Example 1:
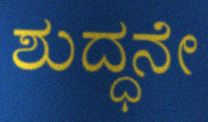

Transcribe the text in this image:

ಶುದ್ಧನೇ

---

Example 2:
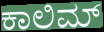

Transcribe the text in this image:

ಕಾಲಿಮ್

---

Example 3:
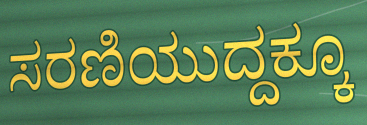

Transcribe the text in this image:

ಸರಣಿಯುದ್ದಕ್ಕೂ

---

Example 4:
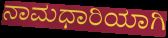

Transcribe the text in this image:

ನಾಮಧಾರಿಯಾಗಿ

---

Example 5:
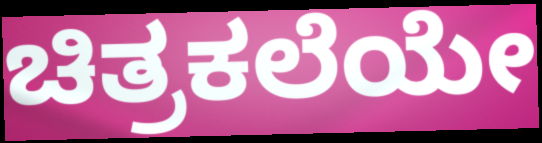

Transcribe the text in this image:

ಚಿತ್ರಕಲೆಯೇ